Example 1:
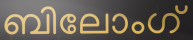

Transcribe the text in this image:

ബിലോംഗ്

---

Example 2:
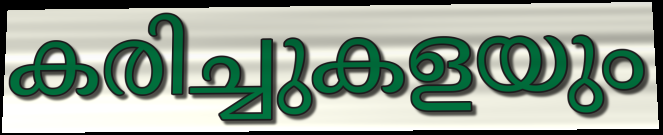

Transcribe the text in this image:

കരിച്ചുകളയും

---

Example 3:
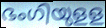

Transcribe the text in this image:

ഭംഗിയുളള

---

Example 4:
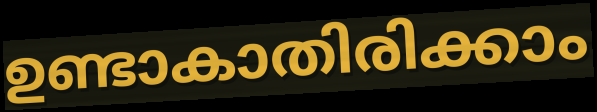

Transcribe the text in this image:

ഉണ്ടാകാതിരിക്കാം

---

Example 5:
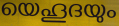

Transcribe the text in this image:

യെഹൂദയും